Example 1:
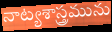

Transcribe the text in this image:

నాట్యశాస్త్రమును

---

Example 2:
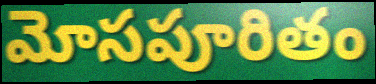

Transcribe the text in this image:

మోసపూరితం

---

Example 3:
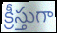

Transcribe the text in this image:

క్రీస్తుగా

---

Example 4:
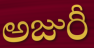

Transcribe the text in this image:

అజురీ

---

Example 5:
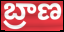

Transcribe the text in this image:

బ్రాణ